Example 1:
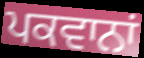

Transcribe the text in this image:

ਪਕਵਾਨਾਂ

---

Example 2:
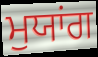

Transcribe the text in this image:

ਮੁਯਾਂਗ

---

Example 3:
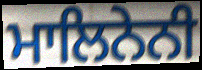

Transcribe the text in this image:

ਮਾਲਿਨੇਨੀ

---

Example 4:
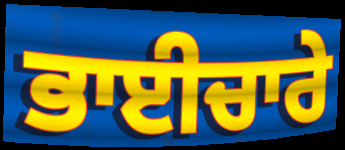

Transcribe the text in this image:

ਭਾਈਚਾਰੇ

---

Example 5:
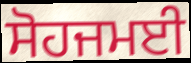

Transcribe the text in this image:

ਸੋਹਜਮਈ